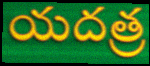
యదత్ర